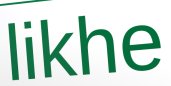
likhe